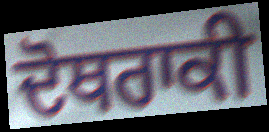
ਦੋਥਰਾਕੀ